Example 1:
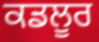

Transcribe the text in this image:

ਕਡਲੂਰ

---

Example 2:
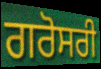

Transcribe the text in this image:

ਗਰੋਸਰੀ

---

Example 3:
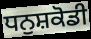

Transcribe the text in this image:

ਧਨੁਸ਼ਕੋਡੀ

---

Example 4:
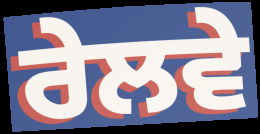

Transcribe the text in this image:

ਰੇਲਵੇ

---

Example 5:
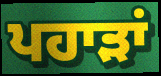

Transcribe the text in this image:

ਪਹਾੜਾਂ